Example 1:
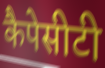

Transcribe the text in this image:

कैपेसीटी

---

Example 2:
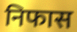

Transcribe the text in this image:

निफास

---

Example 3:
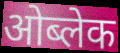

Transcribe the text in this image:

ओब्लेक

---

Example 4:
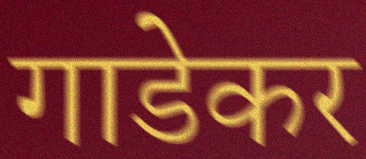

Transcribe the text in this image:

गाडेकर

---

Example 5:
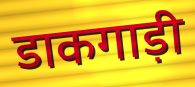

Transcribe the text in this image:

डाकगाड़ी